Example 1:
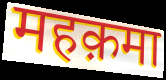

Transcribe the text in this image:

महक़मा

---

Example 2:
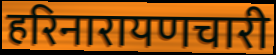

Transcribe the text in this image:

हरिनारायणचारी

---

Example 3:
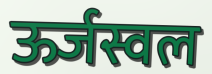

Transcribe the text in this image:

ऊर्जस्वल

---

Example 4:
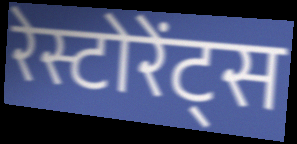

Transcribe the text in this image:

रेस्‍टोरेंट्स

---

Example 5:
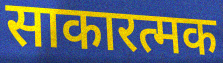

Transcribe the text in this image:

साकारत्मक